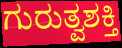
ಗುರುತ್ವಶಕ್ತಿ